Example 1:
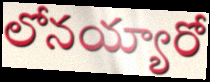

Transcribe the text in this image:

లోనయ్యారో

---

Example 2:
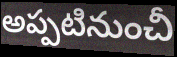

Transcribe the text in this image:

అప్పటినుంచీ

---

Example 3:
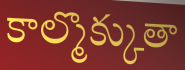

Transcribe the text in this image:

కాల్మొక్కుతా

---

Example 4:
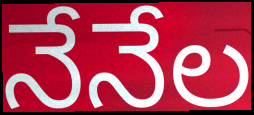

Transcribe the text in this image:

నేనేల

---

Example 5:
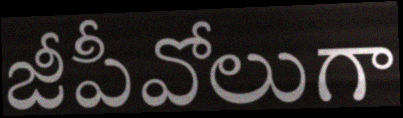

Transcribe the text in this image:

జీపీవోలుగా